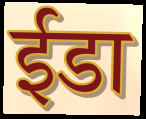
ईडा